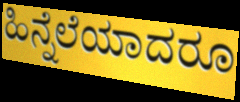
ಹಿನ್ನೆಲೆಯಾದರೂ